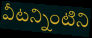
వీటన్నింటిని